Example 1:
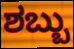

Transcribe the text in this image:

ಶಬ್ಬು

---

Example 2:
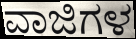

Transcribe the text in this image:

ವಾಜಿಗಳ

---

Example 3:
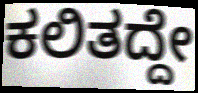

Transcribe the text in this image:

ಕಲಿತದ್ದೇ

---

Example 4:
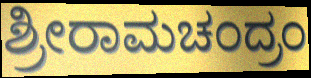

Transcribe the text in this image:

ಶ್ರೀರಾಮಚಂದ್ರಂ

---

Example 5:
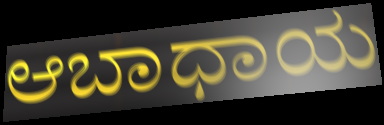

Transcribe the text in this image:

ಆಬಾಧಾಯ